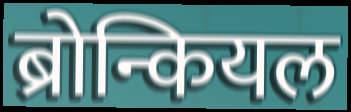
ब्रोन्कियल